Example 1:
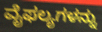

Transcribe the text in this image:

ವೈಫಲ್ಯಗಳನ್ನು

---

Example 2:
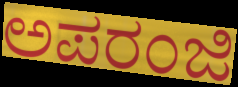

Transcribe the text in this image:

ಅಪರಂಜಿ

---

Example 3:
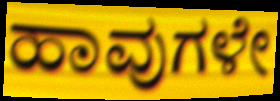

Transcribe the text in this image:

ಹಾವುಗಳೇ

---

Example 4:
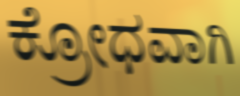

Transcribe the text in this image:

ಕ್ರೋಧವಾಗಿ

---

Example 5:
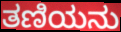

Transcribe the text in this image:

ತಣಿಯನು